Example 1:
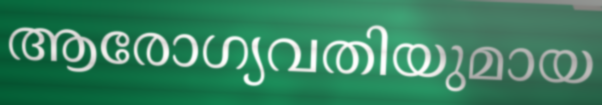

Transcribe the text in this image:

ആരോഗ്യവതിയുമായ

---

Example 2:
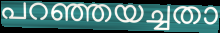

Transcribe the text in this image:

പറഞ്ഞയച്ചതാ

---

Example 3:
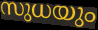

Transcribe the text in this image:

സുധയും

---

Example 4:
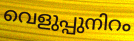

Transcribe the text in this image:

വെളുപ്പുനിറം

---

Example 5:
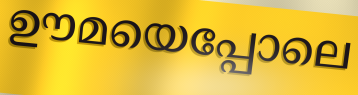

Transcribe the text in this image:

ഊമയെപ്പോലെ